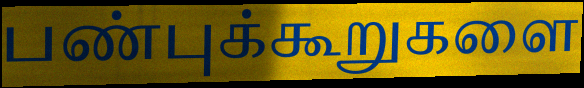
பண்புக்கூறுகளை